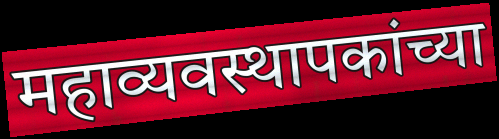
महाव्यवस्थापकांच्या